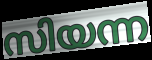
സിയന്ന